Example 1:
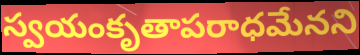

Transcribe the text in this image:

స్వయంకృతాపరాధమేనని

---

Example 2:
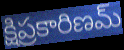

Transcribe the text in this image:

క్షిప్రకారిణమ్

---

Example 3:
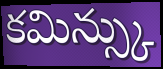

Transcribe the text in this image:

కమిన్స్కు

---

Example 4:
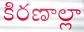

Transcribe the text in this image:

కిరణాల్లా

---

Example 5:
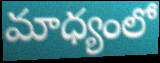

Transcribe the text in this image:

మాధ్యంలో